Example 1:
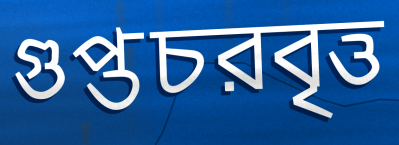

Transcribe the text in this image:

গুপ্তচরবৃত্ত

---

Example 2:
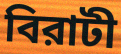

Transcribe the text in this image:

বিরাটী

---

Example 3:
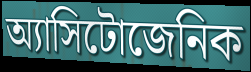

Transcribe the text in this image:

অ্যাসিটোজেনিক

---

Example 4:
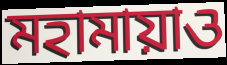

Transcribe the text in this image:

মহামায়াও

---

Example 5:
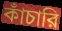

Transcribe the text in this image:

কাঁচারি